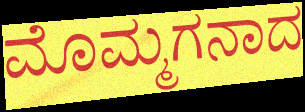
ಮೊಮ್ಮಗನಾದ